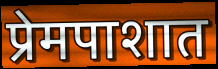
प्रेमपाशात